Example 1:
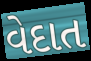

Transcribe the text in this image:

વેદાત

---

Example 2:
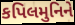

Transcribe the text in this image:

કપિલમુનિને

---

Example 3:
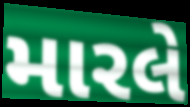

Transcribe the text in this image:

મારલે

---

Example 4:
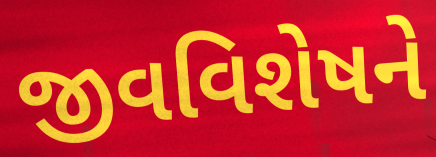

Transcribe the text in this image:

જીવવિશેષને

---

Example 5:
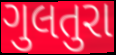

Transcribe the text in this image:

ગુલતુરા